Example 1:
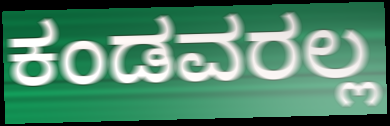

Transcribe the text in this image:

ಕಂಡವರಲ್ಲ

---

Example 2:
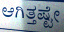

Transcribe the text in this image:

ಆಗಿತ್ತಷ್ಟೇ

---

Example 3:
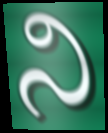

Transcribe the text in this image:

ನಿ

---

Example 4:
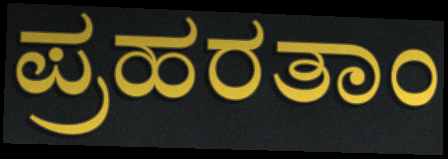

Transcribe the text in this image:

ಪ್ರಹರತಾಂ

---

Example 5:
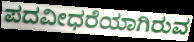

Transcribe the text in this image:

ಪದವೀಧರೆಯಾಗಿರುವ